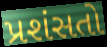
પ્રશંસતો